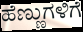
ಹೆಣ್ಣುಗಳಿಗೆ